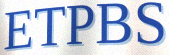
ETPBS